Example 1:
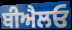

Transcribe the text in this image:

ਬੀਐਲਓ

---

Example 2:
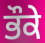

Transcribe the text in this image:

ਭੌਕੇ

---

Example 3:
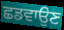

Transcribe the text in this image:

ਛਡਵਾਉਣ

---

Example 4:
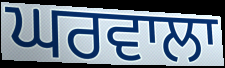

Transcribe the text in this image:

ਘਰਵਾਲਾ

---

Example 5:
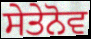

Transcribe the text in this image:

ਸੇਤੇਨੋਵ